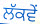
ਲੱਕਵੇਂ